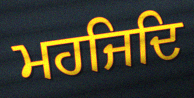
ਮਹਜਿਦਿ